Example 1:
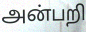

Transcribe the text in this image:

அன்பறி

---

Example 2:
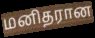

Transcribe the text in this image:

மனிதரான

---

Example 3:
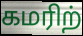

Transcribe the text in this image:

கமரிற்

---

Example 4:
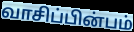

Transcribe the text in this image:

வாசிப்பின்பம்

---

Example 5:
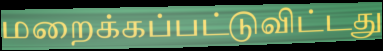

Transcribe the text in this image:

மறைக்கப்பட்டுவிட்டது